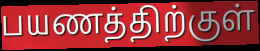
பயணத்திற்குள்